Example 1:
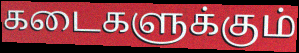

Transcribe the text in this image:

கடைகளுக்கும்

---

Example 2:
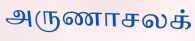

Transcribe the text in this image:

அருணாசலக்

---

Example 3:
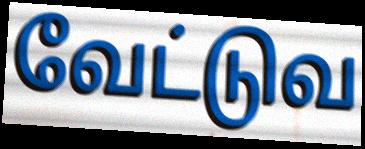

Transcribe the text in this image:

வேட்டுவ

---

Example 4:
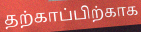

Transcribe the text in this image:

தற்காப்பிற்காக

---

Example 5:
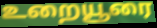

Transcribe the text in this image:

உறையூரை